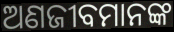
ଅଣଜୀବମାନଙ୍କ